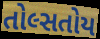
તોલ્સતોય